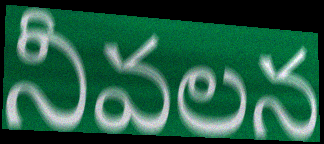
నీవలన